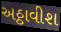
અઠ્ઠાવીશ